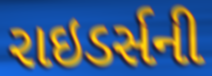
રાઇડર્સની